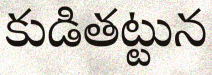
కుడితట్టున